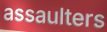
assaulters